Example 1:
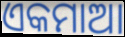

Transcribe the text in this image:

ଏକମାଆ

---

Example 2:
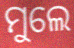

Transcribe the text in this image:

ମୁଲେ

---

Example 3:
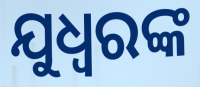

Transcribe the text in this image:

ଯୁଧ୍ଵରଙ୍କ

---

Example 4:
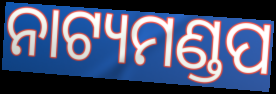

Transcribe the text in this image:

ନାଟ୍ୟମଣ୍ଡପ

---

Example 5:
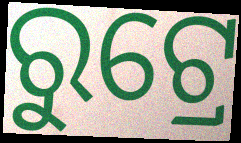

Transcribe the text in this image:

ରୁଟ୍ରେ